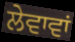
ਲੇਵਾਵਾਂ